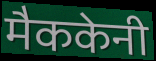
मैककेनी